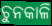
ଚୁନକାଳି